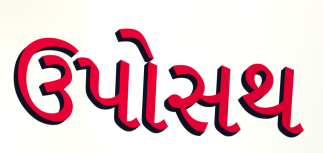
ઉપોસથ